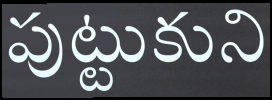
పుట్టుకుని